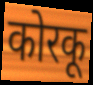
कोरकू